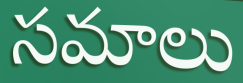
సమాలు